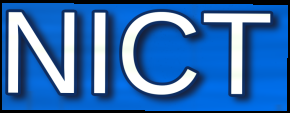
NICT